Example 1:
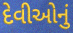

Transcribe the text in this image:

દેવીઓનું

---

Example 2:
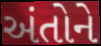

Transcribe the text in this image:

અંતોને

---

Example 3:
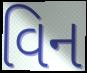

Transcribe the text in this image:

વિન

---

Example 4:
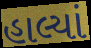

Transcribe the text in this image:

હાલ્યાં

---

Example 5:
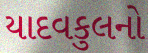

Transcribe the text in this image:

યાદવકુલનો